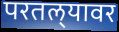
परतल्यावर